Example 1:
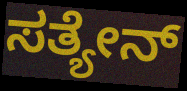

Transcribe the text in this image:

ಸತ್ಯೇನ್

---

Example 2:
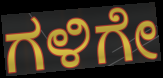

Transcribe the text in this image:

ಗಳಿಗೇ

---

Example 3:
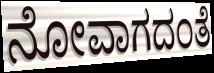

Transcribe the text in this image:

ನೋವಾಗದಂತೆ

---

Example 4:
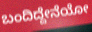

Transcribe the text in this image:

ಬಂದಿದ್ದೇನೆಯೋ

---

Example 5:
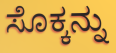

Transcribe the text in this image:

ಸೊಕ್ಕನ್ನು